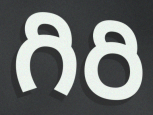
గిరి